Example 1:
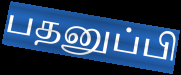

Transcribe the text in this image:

பதனுப்பி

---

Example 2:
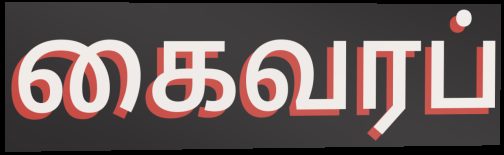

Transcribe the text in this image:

கைவரப்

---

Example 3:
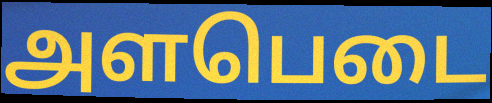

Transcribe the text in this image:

அளபெடை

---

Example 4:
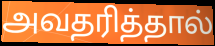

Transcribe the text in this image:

அவதரித்தால்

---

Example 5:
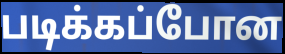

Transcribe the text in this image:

படிக்கப்போன